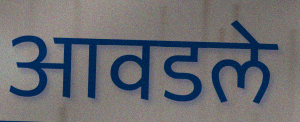
आवडले